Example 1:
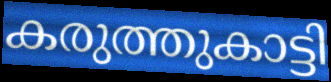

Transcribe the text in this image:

കരുത്തുകാട്ടി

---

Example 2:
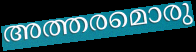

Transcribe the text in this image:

അത്തരമൊരു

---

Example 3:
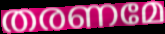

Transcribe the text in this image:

തരണമേ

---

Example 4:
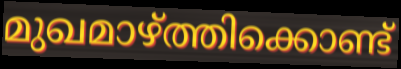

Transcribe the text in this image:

മുഖമാഴ്ത്തിക്കൊണ്ട്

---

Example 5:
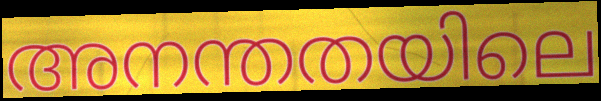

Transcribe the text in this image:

അനന്തതയിലെ